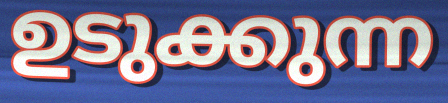
ഉടുക്കുന്ന